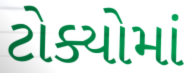
ટોક્યોમાં